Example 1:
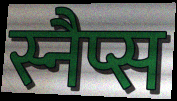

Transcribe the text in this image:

स्नैप्स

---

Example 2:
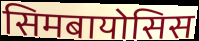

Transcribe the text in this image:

सिमबायोसिस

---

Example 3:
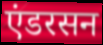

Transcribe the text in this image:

एंडरसन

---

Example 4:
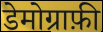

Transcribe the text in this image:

डेमोग्राफ़ी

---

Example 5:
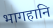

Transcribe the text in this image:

भागहानि